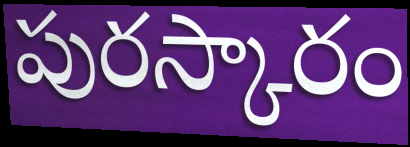
పురస్కారం